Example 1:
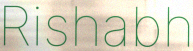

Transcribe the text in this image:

Rishabh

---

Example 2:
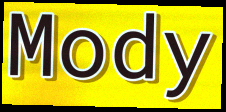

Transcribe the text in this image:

Mody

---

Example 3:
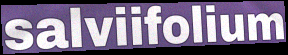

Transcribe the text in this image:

salviifolium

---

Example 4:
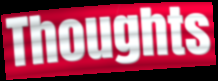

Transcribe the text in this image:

Thoughts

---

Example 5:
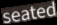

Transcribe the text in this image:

seated